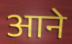
आने